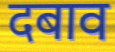
दबाव